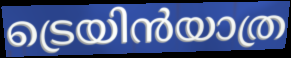
ട്രെയിൻയാത്ര